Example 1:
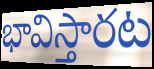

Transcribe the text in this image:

భావిస్తారట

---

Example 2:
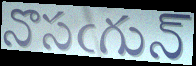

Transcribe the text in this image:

నొసఁగున్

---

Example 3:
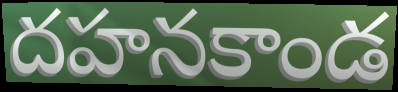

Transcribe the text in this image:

దహనకాండ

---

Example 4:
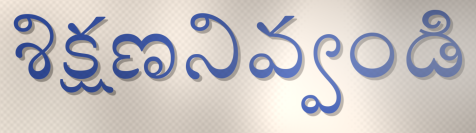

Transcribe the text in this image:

శిక్షణనివ్వండి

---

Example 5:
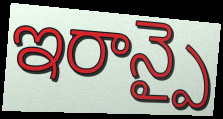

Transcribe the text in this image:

ఇరాన్పై